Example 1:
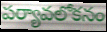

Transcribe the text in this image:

పర్యావలోకనం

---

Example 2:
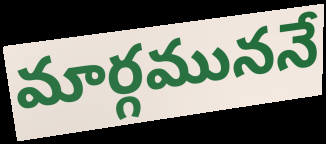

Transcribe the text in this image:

మార్గముననే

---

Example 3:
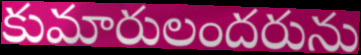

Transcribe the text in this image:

కుమారులందరును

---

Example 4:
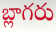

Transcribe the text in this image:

బ్లాగరు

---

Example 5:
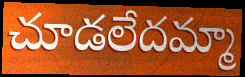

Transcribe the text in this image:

చూడలేదమ్మా